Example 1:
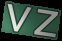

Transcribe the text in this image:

vz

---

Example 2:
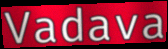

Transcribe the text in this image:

Vadava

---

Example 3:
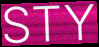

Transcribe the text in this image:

STY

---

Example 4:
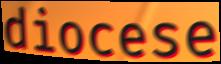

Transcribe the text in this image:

diocese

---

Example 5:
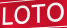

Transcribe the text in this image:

LOTO